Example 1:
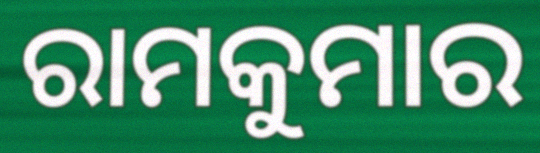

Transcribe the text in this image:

ରାମକୁମାର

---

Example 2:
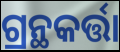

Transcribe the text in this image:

ଗ୍ରନ୍ଥକର୍ତ୍ତା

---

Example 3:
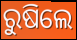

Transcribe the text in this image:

ରୁଷିଲେ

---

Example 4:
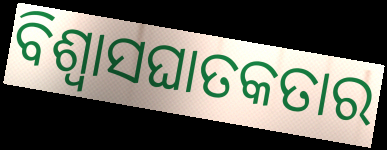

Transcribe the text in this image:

ବିଶ୍ଵାସଘାତକତାର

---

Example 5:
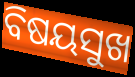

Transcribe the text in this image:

ବିଷୟସୁଖ